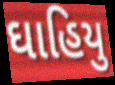
ઘાહિયુ